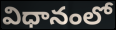
విధానంలో